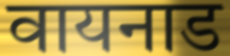
वायनाड